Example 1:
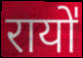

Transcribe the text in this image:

रायो॑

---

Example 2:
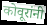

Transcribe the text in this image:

कोवूरांनी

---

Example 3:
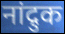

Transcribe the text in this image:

नांद्रुक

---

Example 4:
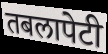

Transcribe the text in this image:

तबलापेटी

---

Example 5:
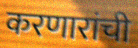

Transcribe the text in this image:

करणारांची